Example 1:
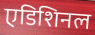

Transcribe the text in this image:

एडिशिनल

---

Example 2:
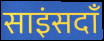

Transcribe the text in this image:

साइंसदाँ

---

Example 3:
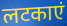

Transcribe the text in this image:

लटकाएं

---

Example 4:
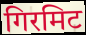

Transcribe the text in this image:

गिरमिट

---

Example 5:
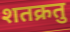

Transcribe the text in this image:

शतक्रतु